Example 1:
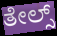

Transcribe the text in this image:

ತೇಲ್ಸ್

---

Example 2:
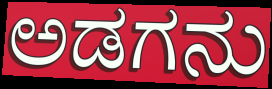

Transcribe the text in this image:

ಅಡಗನು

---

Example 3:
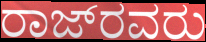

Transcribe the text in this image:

ರಾಜ್‌ರವರು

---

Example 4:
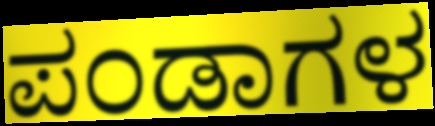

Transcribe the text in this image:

ಪಂಡಾಗಳ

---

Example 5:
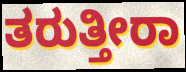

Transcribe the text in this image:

ತರುತ್ತೀರಾ